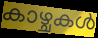
കാഴ്ചകൾ